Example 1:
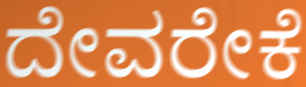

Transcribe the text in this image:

ದೇವರೇಕೆ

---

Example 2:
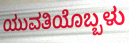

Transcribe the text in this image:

ಯುವತಿಯೊಬ್ಬಳು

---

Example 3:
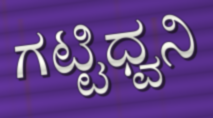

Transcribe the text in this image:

ಗಟ್ಟಿಧ್ವನಿ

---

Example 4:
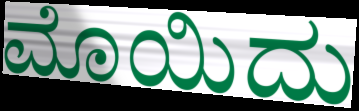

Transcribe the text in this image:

ಮೊಯಿದು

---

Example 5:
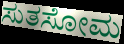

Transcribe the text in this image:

ಸುತಸೋಮ